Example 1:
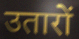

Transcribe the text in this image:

उतारों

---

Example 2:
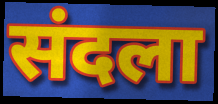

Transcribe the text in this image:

संदला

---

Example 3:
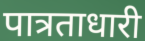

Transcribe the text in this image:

पात्रताधारी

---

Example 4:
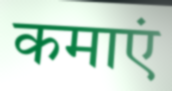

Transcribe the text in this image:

कमाएं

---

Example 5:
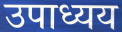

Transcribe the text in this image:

उपाध्यय